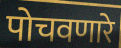
पोचवणारे